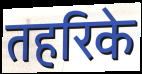
तहरिके